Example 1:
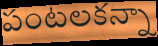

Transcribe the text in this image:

పంటలకన్నా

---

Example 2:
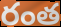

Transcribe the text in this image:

రంత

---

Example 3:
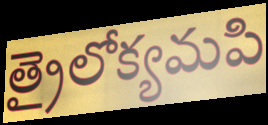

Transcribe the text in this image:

త్రైలోక్యమపి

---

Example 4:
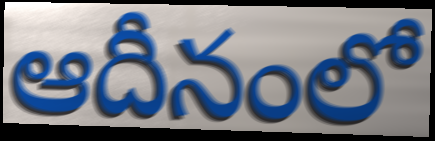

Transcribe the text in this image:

ఆదీనంలో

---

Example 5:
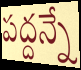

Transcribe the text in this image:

పద్దన్నే